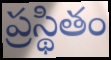
ప్రస్థితం